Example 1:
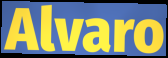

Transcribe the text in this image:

Alvaro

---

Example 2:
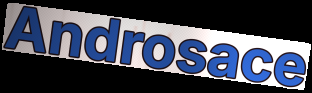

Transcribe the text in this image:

Androsace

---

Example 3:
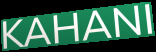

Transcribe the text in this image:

KAHANI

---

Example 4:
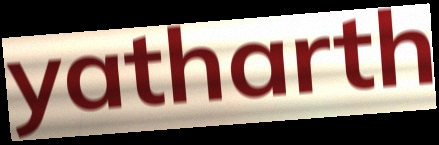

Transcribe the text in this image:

yatharth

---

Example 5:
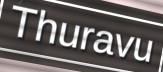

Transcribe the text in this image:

Thuravu